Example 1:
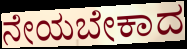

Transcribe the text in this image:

ನೇಯಬೇಕಾದ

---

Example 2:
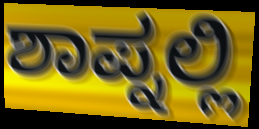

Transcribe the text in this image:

ಶಾಪ್ನಲ್ಲಿ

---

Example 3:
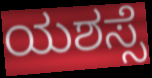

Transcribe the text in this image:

ಯಶಸ್ಸೆ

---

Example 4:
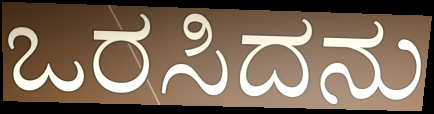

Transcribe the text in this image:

ಒರಸಿದನು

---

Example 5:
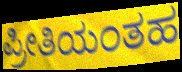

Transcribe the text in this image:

ಪ್ರೀತಿಯಂತಹ